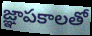
జ్ఞాపకాలతో